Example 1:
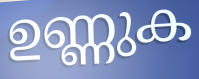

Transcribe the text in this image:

ഉണ്ണുക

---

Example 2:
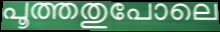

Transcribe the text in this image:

പൂത്തതുപോലെ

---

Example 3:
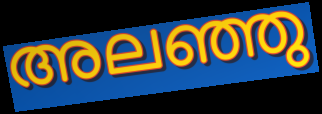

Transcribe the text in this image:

അലഞ്ഞു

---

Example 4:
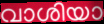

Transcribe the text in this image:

വാശിയാ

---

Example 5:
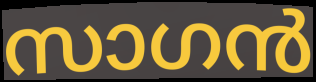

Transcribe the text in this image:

സാഗൻ